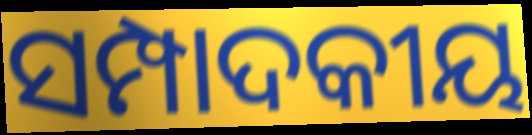
ସମ୍ପାଦକୀୟ